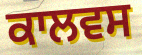
ਕਾਲਵਸ